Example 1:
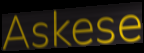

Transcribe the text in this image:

Askese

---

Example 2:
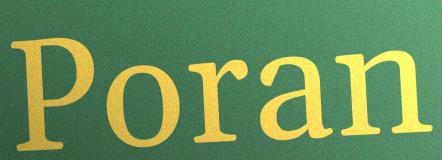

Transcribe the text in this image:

Poran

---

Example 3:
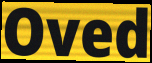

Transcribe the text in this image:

Oved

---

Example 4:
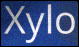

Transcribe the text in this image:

Xylo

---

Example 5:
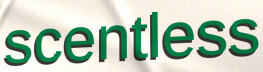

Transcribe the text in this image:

scentless